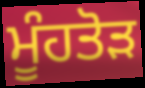
ਮੂੰਹਤੋੜ